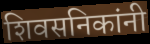
शिवसनिकांनी